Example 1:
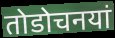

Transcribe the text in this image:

तोडोचनयां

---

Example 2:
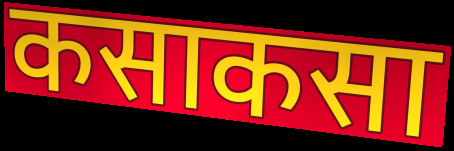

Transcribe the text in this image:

कसाकसा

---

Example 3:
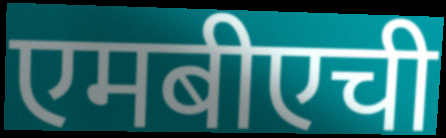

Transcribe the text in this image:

एमबीएची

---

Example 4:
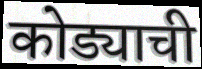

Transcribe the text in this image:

कोड्याची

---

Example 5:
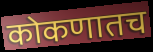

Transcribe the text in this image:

कोकणातच